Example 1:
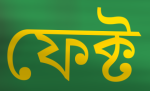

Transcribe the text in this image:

ফেক্ট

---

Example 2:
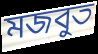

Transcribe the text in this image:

মজবুত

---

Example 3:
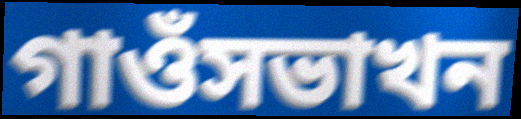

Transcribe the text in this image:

গাওঁসভাখন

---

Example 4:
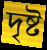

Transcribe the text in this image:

দৃষ্ট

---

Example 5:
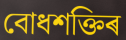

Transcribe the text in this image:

বোধশক্তিৰ